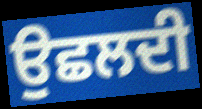
ਉਛਲਦੀ